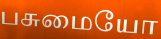
பசுமையோ